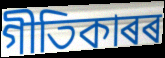
গীতিকাৰৰ